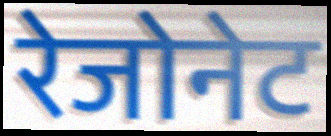
रेजोनेट